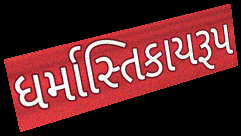
ધર્માસ્તિકાયરૂપ